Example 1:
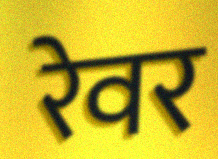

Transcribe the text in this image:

रेवर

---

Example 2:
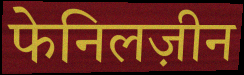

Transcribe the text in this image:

फेनिलज़ीन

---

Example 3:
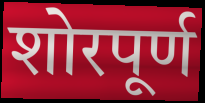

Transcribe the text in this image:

शोरपूर्ण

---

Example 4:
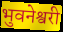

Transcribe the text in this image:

भुवनेश्वरी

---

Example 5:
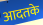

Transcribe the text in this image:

आदतके